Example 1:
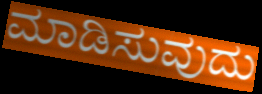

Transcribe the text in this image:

ಮಾಡಿಸುವುದು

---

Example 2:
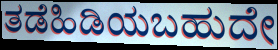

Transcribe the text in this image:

ತಡೆಹಿಡಿಯಬಹುದೇ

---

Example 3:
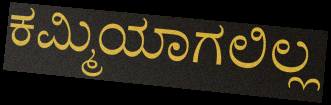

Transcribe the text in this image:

ಕಮ್ಮಿಯಾಗಲಿಲ್ಲ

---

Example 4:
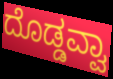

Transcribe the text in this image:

ದೊಡ್ಡವ್ವಾ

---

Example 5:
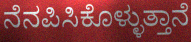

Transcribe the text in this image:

ನೆನಪಿಸಿಕೊಳ್ಳುತ್ತಾನೆ